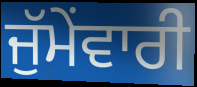
ਜੁੱਮੇਂਵਾਰੀ